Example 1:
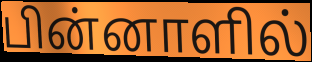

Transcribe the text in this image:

பின்னாளில்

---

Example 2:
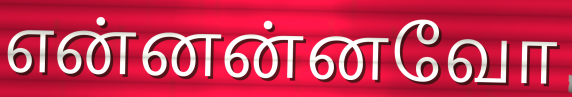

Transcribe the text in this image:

என்னன்னவோ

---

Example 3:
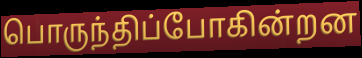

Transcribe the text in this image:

பொருந்திப்போகின்றன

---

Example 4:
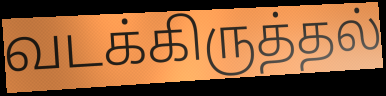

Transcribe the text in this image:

வடக்கிருத்தல்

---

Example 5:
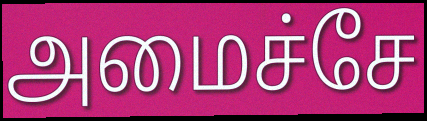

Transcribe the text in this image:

அமைச்சே